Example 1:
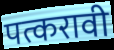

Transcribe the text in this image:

पत्करावी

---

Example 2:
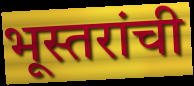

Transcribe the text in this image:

भूस्तरांची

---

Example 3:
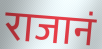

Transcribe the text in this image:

राजानं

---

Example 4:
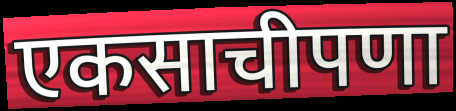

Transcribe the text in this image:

एकसाचीपणा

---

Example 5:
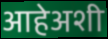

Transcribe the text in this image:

आहेअशी